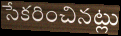
సేకరించినట్లు